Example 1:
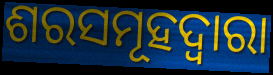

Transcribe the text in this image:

ଶରସମୂହଦ୍ୱାରା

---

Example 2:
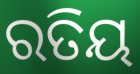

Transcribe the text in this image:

ରତିୟ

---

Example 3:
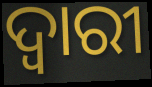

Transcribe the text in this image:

ଦ୍ଵାରୀ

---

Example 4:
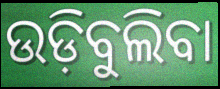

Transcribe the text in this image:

ଉଡ଼ିବୁଲିବା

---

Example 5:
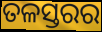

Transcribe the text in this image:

ତଳସ୍ତରର